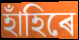
হাঁহিৰে